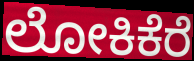
ಲೋಕಿಕೆರೆ